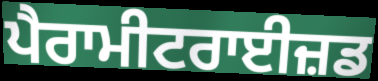
ਪੈਰਾਮੀਟਰਾਈਜ਼ਡ